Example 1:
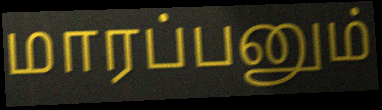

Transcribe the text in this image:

மாரப்பனும்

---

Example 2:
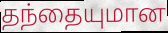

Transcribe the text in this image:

தந்தையுமான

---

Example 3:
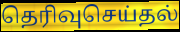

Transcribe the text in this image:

தெரிவுசெய்தல்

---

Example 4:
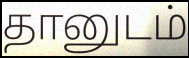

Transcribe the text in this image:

தானுடம்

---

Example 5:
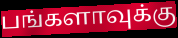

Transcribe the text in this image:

பங்களாவுக்கு